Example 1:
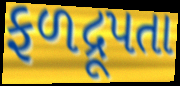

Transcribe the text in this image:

ફળદ્રૂપતા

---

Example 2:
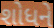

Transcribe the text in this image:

શોધને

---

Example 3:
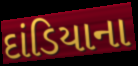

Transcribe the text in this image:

દાંડિયાના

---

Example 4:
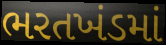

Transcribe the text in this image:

ભરતખંડમાં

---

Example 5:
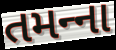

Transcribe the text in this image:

તમન્‍ના